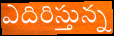
ఎదిరిస్తున్న